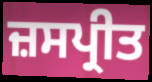
ਜ਼ਸਪ੍ਰੀਤ